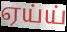
ஏய்ய்